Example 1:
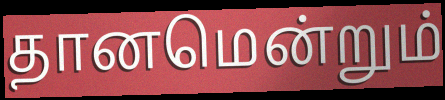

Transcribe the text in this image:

தானமென்றும்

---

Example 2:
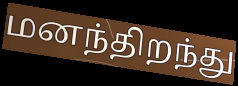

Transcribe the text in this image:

மனந்திறந்து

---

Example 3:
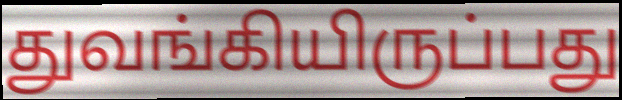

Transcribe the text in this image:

துவங்கியிருப்பது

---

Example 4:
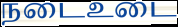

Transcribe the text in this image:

நடைஉடை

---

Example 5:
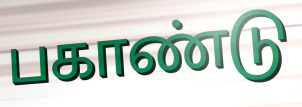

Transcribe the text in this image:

பகாண்டு